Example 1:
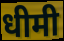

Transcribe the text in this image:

धीमी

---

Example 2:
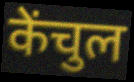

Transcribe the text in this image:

केंचुल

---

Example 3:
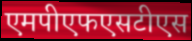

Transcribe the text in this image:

एमपीएफएसटीएस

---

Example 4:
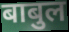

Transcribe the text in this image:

बाबुल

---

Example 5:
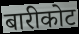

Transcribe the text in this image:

बारीकोट